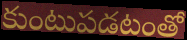
కుంటుపడటంతో